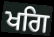
ਖਗਿ